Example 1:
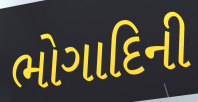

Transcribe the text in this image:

ભોગાદિની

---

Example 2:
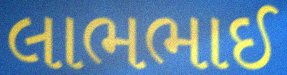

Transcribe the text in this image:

લાભભાઈ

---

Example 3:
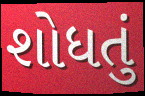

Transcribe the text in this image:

શોધતું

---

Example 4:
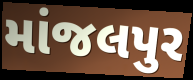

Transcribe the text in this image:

માંજલપુર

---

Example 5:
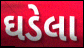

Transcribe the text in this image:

ઘડેલા